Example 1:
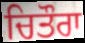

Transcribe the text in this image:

ਚਿਤੌਰਾ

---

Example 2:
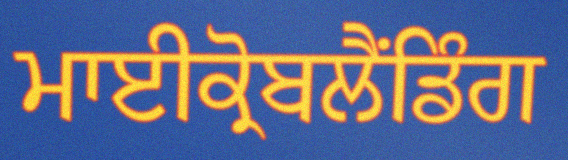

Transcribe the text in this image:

ਮਾਈਕ੍ਰੋਬਲੈਂਡਿੰਗ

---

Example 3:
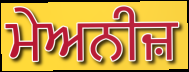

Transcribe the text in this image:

ਮੇਅਨੀਜ਼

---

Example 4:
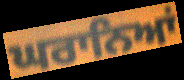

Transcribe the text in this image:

ਘਰਾਨਿਆਂ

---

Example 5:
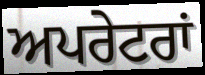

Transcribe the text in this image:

ਅਪਰੇਟਰਾਂ